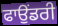
ਫਾਉਂਡਰੀ